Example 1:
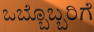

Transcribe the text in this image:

ಒಬ್ಬೊಬ್ಬರಿಗೆ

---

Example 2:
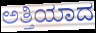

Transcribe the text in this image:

ಅತ್ತಿಯಾದ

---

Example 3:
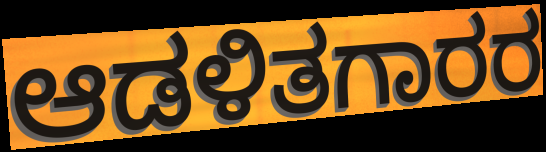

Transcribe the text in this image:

ಆಡಳಿತಗಾರರ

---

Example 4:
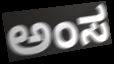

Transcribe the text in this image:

ಅಂಸ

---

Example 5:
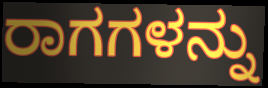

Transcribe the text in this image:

ರಾಗಗಳನ್ನು